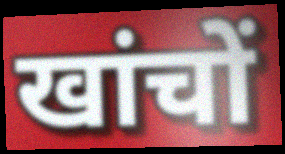
खांचों